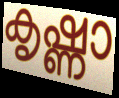
കൃഷ്ണാ